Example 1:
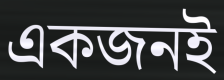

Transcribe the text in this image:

একজনই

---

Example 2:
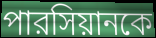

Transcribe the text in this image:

পারসিয়ানকে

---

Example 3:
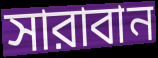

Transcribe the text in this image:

সারাবান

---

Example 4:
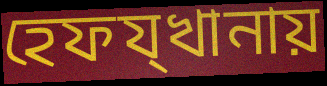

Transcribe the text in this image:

হেফয্খানায়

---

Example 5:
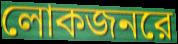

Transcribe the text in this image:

লোকজনরে